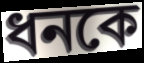
ধনকে